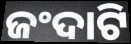
ଜଂଦାଟି